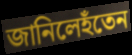
জানিলেহঁতেন